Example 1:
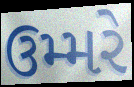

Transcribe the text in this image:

ઉમ્મરે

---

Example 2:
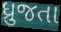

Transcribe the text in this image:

ધ્રુજતા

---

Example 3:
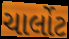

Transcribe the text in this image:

ચાર્લોટ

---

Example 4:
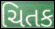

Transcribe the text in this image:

ચિતક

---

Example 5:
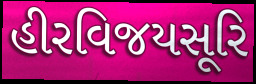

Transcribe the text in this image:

હીરવિજયસૂરિ